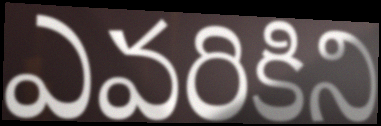
ఎవరికిని